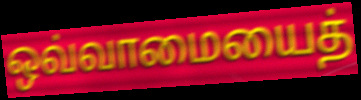
ஒவ்வாமையைத்